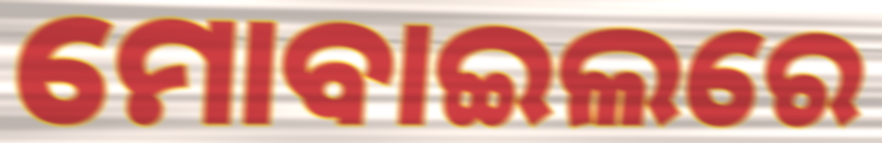
ମୋବାଇଲରେ